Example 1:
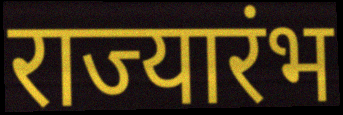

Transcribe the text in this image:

राज्यारंभ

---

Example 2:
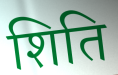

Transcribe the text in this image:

शिति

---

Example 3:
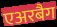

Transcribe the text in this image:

एअरबैग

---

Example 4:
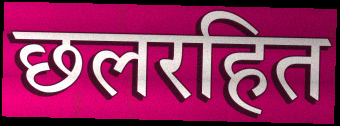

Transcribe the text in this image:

छलरहित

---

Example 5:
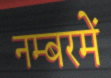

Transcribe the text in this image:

नम्बरमें